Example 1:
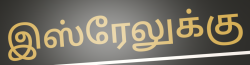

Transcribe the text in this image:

இஸ்ரேலுக்கு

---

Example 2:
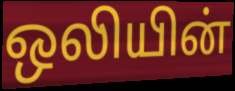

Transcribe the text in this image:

ஒலியின்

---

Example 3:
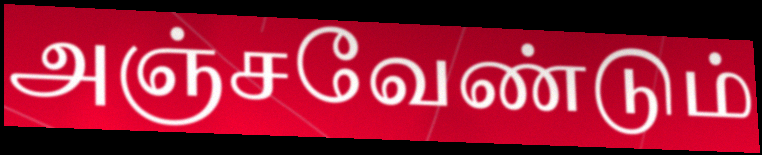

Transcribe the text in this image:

அஞ்சவேண்டும்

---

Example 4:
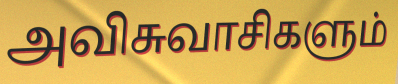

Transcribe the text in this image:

அவிசுவாசிகளும்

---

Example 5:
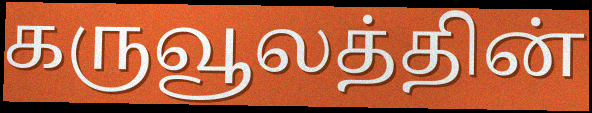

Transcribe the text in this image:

கருவூலத்தின்